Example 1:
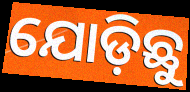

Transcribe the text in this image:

ଯୋଡ଼ିଛୁ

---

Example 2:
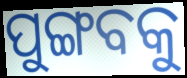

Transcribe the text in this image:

ପୁଙ୍ଗବକୁ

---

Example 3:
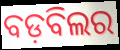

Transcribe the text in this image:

ବଡ଼ବିଲର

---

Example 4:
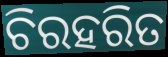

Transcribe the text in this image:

ଚିରହରିତ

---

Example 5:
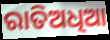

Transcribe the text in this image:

ରାତିଅଧିଆ